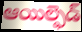
ఆయిల్ఫెడ్